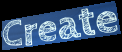
Create